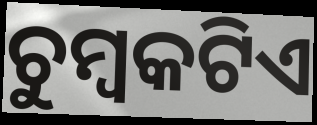
ଚୁମ୍ବକଟିଏ